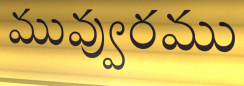
మువ్వురము